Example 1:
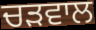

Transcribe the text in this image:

ਚੜਵਾਲ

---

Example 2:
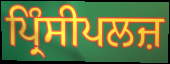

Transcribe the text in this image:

ਪ੍ਰਿੰਸੀਪਲਜ਼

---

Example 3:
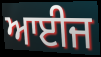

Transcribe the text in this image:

ਆਈਜ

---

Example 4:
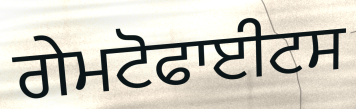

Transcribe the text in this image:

ਗੇਮਟੋਫਾਈਟਸ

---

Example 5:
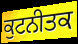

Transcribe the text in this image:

ਕੁਟਨੀਤਕ